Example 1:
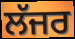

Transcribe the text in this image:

ਲੱਜਰ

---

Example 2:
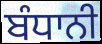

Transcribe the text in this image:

ਬੰਧਾਨੀ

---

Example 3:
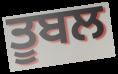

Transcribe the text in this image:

ਤੂਬਲ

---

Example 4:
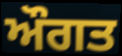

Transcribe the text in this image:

ਔਗਤ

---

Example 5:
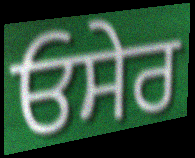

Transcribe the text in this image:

ਓਸੇਰ